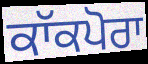
ਕਾੱਕਪੋਰਾ